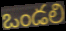
ఒండలి